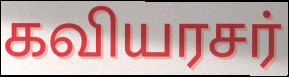
கவியரசர்